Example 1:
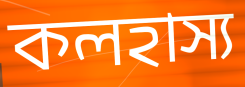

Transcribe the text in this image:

কলহাস্য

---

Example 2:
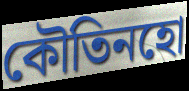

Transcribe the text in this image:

কৌতিনহো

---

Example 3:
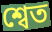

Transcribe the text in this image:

শ্বেত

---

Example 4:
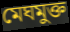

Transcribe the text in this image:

মেঘমুক্ত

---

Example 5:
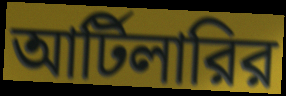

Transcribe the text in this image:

আর্টিলারির